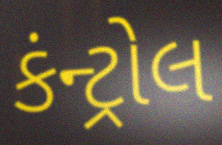
કંન્ટ્રોલ